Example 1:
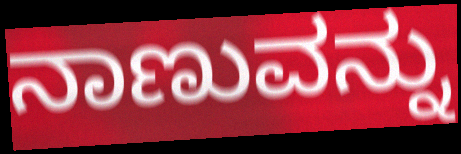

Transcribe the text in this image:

ನಾಣುವನ್ನು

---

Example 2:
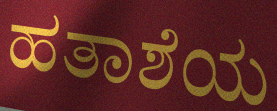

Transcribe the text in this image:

ಹತಾಶೆಯ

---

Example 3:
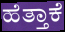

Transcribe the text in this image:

ಹೆತ್ತಾಕೆ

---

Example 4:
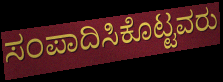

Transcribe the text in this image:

ಸಂಪಾದಿಸಿಕೊಟ್ಟವರು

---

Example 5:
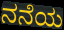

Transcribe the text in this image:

ನನೆಯ